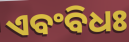
ଏବଂବିଧଃ